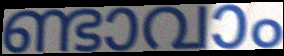
ണ്ടാവാം